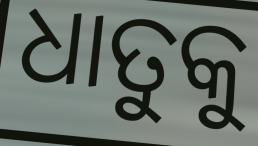
ଧାତୁକୁ